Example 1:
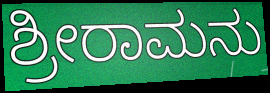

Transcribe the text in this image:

ಶ್ರೀರಾಮನು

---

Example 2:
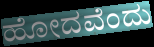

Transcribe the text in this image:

ಹೋದವೆಂದು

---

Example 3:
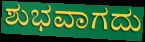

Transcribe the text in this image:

ಶುಭವಾಗದು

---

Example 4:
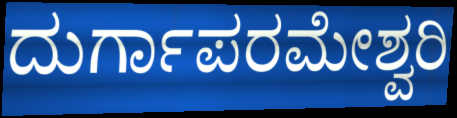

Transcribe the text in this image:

ದುರ್ಗಾಪರಮೇಶ್ವರಿ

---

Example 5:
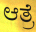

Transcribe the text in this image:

ಆತ್ರೆ